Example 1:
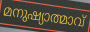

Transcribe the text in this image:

മനുഷ്യാത്മാവ്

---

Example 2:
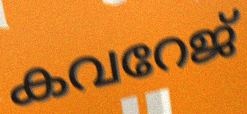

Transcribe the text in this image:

കവറേജ്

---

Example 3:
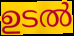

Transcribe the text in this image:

ഉടൽ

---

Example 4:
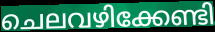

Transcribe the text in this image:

ചെലവഴിക്കേണ്ടി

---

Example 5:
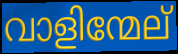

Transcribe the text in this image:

വാളിന്മേല്